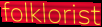
folklorist